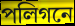
পলিগনে